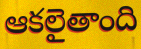
ఆకలైతాంది